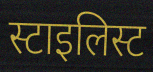
स्टाइलिस्ट